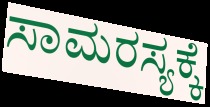
ಸಾಮರಸ್ಯಕ್ಕೆ